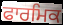
ਫਾਰਮਿਕ